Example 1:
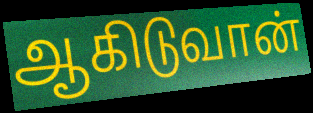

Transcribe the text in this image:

ஆகிடுவான்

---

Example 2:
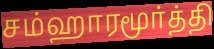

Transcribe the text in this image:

சம்ஹாரமூர்த்தி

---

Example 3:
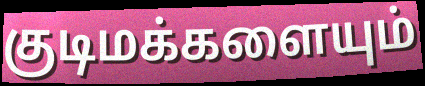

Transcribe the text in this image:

குடிமக்களையும்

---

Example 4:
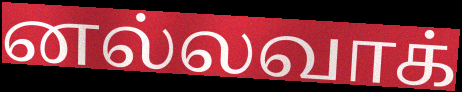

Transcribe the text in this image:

னல்லவாக்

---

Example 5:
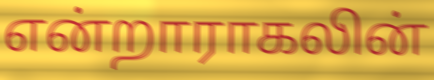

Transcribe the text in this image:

என்றாராகலின்